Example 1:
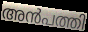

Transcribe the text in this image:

അൻപത്തി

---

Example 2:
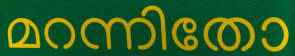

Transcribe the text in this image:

മറന്നിതോ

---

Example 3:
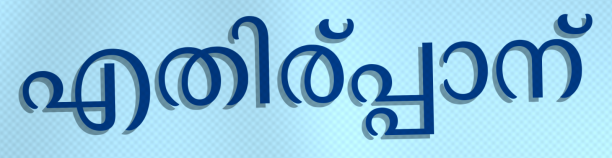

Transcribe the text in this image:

എതിര്പ്പാന്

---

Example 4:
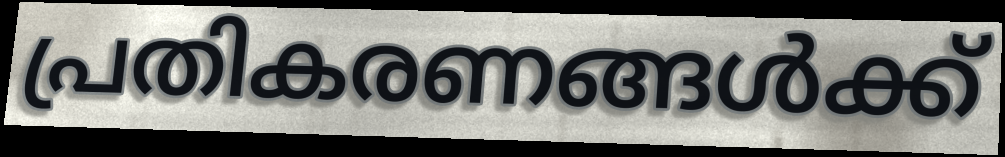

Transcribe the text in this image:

പ്രതികരണങ്ങൾക്ക്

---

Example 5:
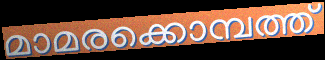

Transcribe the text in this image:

മാമരക്കൊമ്പത്ത്